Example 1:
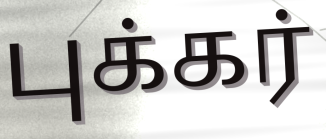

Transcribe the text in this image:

புக்கர்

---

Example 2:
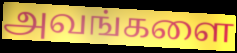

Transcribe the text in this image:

அவங்களை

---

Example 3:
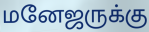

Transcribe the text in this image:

மனேஜருக்கு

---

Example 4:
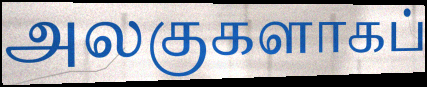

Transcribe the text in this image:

அலகுகளாகப்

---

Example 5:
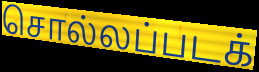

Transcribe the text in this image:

சொல்லப்படக்